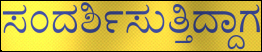
ಸಂದರ್ಶಿಸುತ್ತಿದ್ದಾಗ